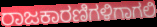
ರಾಜಕಾರಣಿಗಳಿಗಾಗಲಿ